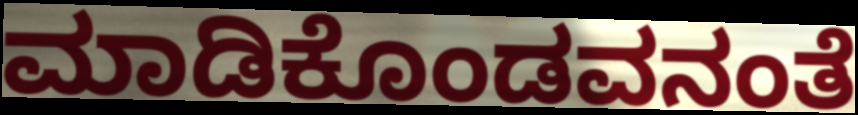
ಮಾಡಿಕೊಂಡವನಂತೆ